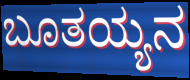
ಬೂತಯ್ಯನ